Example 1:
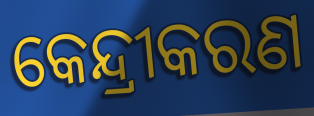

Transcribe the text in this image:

କେନ୍ଦ୍ରୀକରଣ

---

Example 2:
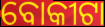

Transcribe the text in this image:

ବୋକୀଟା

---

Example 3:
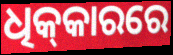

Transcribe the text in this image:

ଧିକ୍‌କାରରେ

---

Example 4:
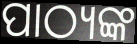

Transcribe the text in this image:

ପାଠ୍ୟଙ୍କ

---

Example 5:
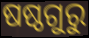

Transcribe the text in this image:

ଷଷ୍ଠଗୁରୁ